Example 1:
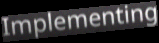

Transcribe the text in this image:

Implementing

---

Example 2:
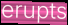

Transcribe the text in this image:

erupts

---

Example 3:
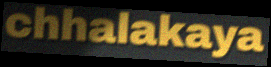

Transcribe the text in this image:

chhalakaya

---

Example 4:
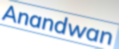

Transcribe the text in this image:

Anandwan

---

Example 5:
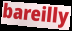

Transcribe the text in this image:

bareilly